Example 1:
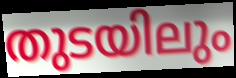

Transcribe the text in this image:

തുടയിലും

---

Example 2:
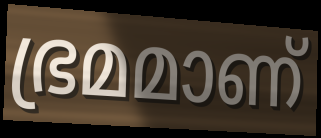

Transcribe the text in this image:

ഭ്രമമാണ്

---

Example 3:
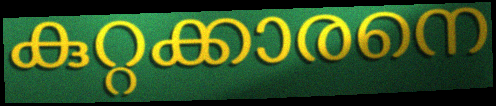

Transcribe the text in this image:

കുറ്റക്കാരനെ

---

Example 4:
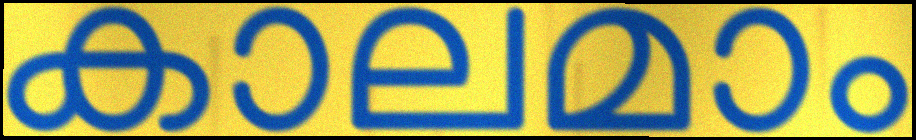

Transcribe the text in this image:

കാലമാം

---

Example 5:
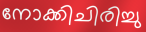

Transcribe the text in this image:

നോക്കിചിരിച്ചു